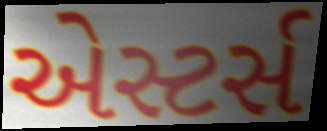
એસ્ટર્સ